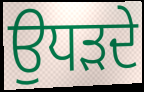
ਉਧੜਦੇ